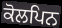
ਕੋਲਪਿਨ